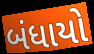
બંધાયો